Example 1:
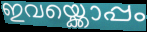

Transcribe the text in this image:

ഇവയ്ക്കൊപ്പം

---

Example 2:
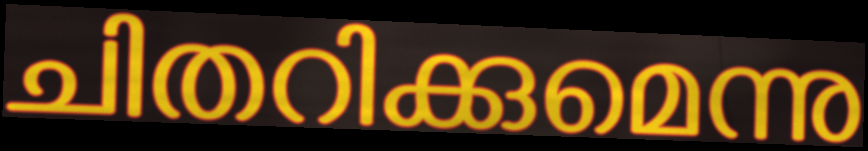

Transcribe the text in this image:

ചിതറിക്കുമെന്നു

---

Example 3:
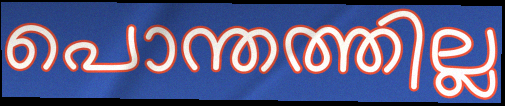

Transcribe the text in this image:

പൊന്തത്തില്ല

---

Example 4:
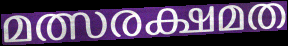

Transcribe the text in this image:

മത്സരക്ഷമത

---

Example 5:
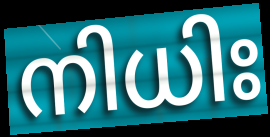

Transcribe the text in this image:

നിധിഃ